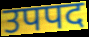
उपपद